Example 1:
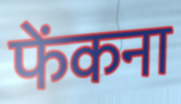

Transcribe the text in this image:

फेंकना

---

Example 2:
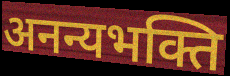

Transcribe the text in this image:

अनन्यभक्ति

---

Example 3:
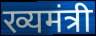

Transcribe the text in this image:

ख्यमंत्री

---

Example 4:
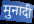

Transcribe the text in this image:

मुनादी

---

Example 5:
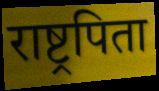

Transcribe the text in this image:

राष्ट्रपिता